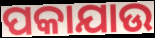
ପକାଯାଉ